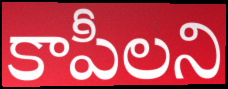
కాపీలని